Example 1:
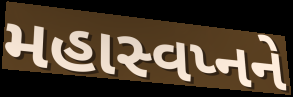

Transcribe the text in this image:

મહાસ્વપ્નને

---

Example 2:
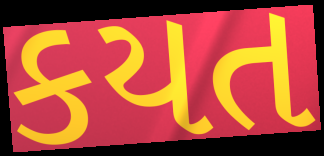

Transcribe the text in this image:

કયત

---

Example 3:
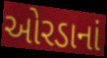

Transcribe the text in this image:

ઓરડાનાં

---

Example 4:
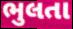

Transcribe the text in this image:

ભુલતા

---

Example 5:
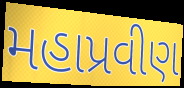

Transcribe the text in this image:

મહાપ્રવીણ